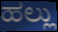
ಹಲ್ಲು